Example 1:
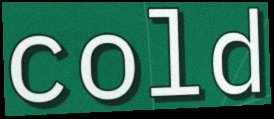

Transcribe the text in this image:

cold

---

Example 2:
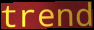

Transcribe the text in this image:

trend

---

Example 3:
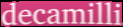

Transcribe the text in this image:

decamilli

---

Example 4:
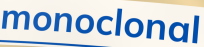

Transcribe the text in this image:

monoclonal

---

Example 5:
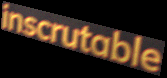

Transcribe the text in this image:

inscrutable